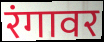
रंगावर